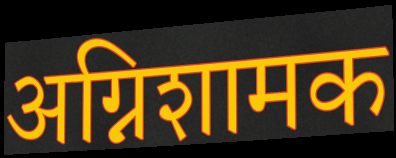
अग्निशामक